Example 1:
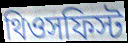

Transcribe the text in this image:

থিওসফিস্ট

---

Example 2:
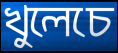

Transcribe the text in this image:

খুলেচে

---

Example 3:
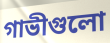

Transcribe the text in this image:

গাভীগুলো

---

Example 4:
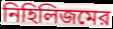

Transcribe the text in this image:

নিহিলিজমের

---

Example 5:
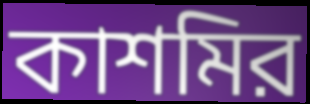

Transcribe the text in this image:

কাশমির